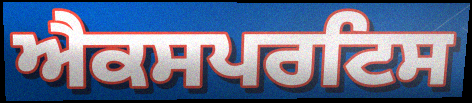
ਐਕਸਪਰਟਿਸ